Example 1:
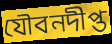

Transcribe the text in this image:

যৌবনদীপ্ত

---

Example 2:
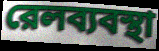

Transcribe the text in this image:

রেলব্যবস্থা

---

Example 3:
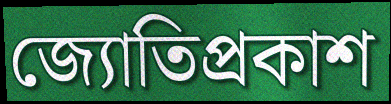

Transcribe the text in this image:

জ্যোতিপ্রকাশ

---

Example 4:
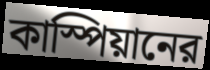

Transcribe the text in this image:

কাস্পিয়ানের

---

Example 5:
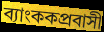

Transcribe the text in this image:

ব্যাংককপ্রবাসী